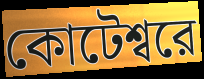
কোটেশ্বরে